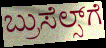
ಬ್ರುಸೆಲ್ಸ್‌ಗೆ